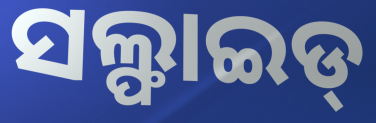
ସଲ୍ଫାଇଡ୍